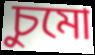
চুমো